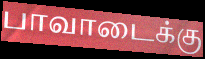
பாவாடைக்கு